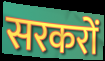
सरकरों